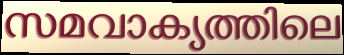
സമവാക്യത്തിലെ